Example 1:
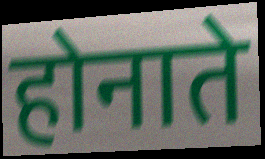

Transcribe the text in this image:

होनाते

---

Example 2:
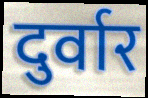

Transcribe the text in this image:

दुर्वार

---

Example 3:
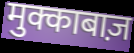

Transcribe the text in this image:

मुक्काबाज़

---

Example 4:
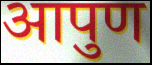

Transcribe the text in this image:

आपुण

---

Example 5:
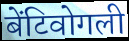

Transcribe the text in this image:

बेंटिवोगली